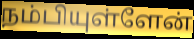
நம்பியுள்ளேன்